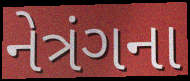
નેત્રંગના